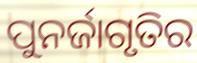
ପୁନର୍ଜାଗୃତିର